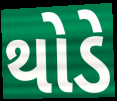
થોડે